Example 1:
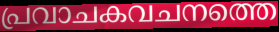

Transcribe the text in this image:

പ്രവാചകവചനത്തെ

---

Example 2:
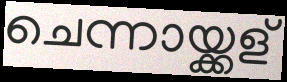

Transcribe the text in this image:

ചെന്നായ്ക്കള്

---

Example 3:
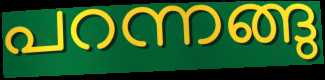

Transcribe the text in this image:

പറന്നങ്ങു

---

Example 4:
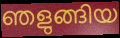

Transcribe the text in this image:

ഞളുങ്ങിയ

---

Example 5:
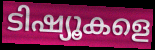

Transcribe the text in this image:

ടിഷ്യൂകളെ